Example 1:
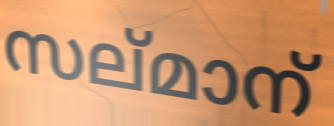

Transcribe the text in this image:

സല്മാന്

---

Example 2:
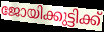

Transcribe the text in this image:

ജോയിക്കുട്ടിക്ക്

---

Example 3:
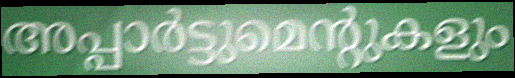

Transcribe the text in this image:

അപ്പാർട്ടുമെന്റുകളും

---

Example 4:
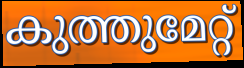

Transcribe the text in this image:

കുത്തുമേറ്റ്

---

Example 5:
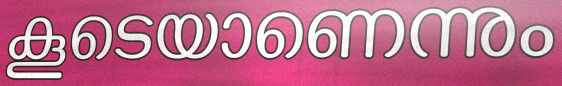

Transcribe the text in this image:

കൂടെയാണെന്നും